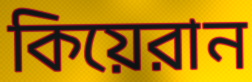
কিয়েরান